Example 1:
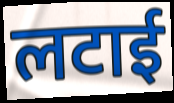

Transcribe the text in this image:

लटाई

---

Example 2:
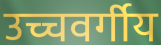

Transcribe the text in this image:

उच्चवर्गीय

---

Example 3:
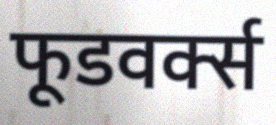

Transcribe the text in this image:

फूडवर्क्स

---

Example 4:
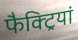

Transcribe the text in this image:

फैक्ट्रियां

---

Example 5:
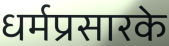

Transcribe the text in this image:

धर्मप्रसारके